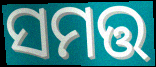
ସମତ୍ତ